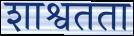
शाश्वतता